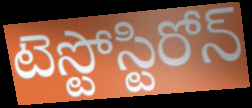
టెస్టోస్టిరోన్